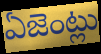
ఏజెంట్లు